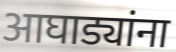
आघाड्यांना